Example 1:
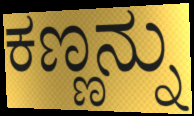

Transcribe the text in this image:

ಕಣ್ಣನ್ನು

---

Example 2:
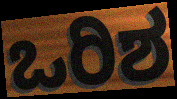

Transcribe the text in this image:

ಒರಿಶ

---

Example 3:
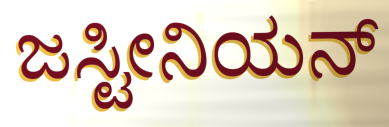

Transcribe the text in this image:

ಜಸ್ಟೀನಿಯನ್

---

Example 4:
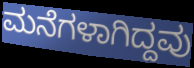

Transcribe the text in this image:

ಮನೆಗಳಾಗಿದ್ದವು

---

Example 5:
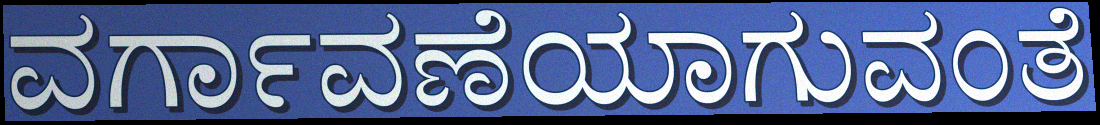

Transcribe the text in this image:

ವರ್ಗಾವಣೆಯಾಗುವಂತೆ